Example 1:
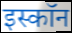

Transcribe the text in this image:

इस्कॉन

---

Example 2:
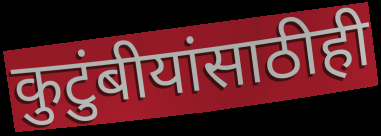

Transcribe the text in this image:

कुटुंबीयांसाठीही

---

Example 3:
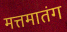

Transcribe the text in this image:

मत्तमातंग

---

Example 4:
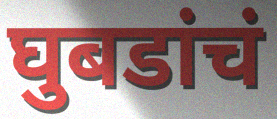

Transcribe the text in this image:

घुबडांचं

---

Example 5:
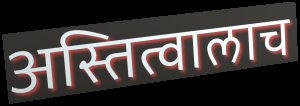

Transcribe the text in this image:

अस्तित्वालाच